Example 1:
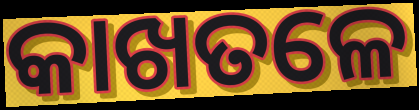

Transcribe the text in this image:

କାଖତଳେ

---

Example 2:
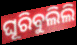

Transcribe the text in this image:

ଘୂରିବୁଲିଲି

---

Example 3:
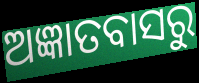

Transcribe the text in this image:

ଅଜ୍ଞାତବାସରୁ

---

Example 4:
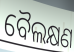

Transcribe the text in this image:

ବୈଲକ୍ଷଣ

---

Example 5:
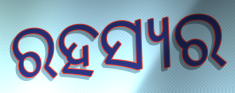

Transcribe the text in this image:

ରହସ୍ୟର